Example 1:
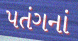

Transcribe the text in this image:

પતંગનાં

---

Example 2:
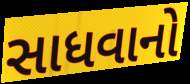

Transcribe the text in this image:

સાધવાનો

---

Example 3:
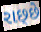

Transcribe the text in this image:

રાછ્છે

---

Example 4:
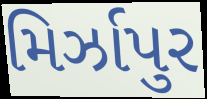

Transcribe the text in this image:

મિર્ઝાપુર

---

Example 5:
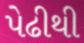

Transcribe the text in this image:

પેઢીથી